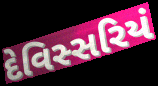
દેવિસ્સરિયં